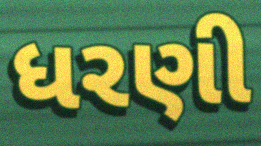
ધરણી